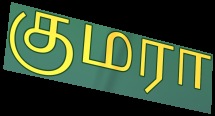
குமரா